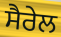
ਸੈਰੇਲ